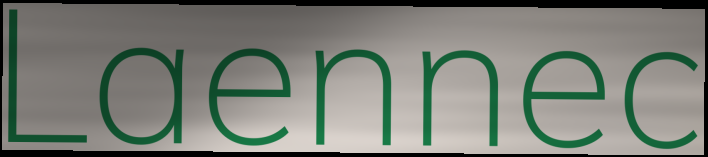
Laennec